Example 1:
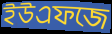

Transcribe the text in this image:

ইউএফজে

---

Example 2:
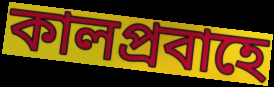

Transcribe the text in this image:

কালপ্রবাহে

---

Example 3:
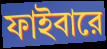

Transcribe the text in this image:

ফাইবারে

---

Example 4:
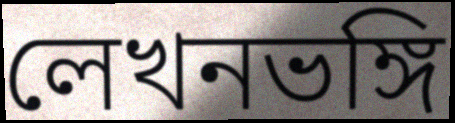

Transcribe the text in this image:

লেখনভঙ্গি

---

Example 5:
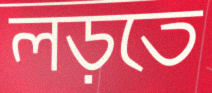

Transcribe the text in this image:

লড়তে